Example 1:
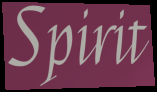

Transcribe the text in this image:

Spirit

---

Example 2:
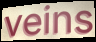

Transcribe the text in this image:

veins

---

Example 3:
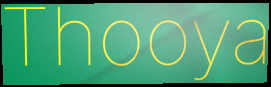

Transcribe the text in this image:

Thooya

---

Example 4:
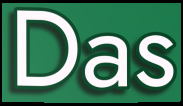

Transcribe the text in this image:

Das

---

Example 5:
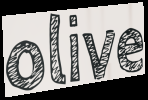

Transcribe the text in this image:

olive